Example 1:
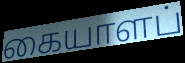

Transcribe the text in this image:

கையாளப்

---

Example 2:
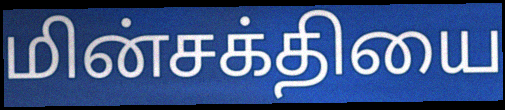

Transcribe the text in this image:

மின்சக்தியை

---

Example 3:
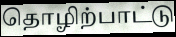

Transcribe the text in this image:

தொழிற்பாட்டு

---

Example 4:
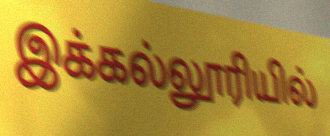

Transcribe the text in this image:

இக்கல்லூரியில்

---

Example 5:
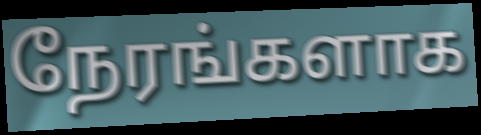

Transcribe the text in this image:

நேரங்களாக